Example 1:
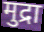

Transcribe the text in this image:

मुद्रा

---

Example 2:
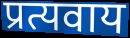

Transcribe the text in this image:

प्रत्यवाय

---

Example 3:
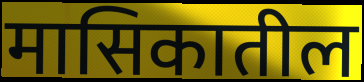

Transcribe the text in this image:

मासिकातील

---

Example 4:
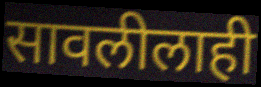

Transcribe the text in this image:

सावलीलाही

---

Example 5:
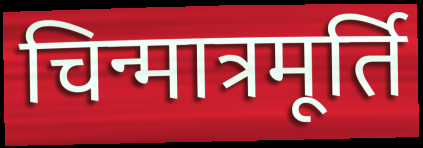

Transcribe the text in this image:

चिन्मात्रमूर्ति